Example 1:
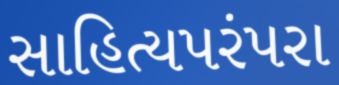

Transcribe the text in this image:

સાહિત્યપરંપરા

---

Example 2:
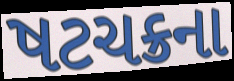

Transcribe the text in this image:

ષટચક્રના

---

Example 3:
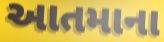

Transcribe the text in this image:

આતમાના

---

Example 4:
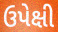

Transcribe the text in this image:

ઉપેક્ષી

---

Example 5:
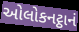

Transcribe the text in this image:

ઓલોકનટ્ઠાનં